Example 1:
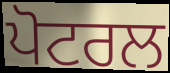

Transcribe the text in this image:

ਪੋਟਰਲ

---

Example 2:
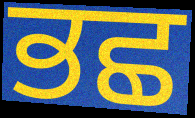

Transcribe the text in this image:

ਭਛ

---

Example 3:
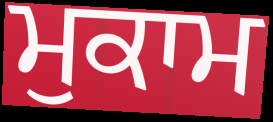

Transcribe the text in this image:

ਮੁਕਾਮ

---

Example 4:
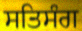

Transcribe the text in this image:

ਸਤਿਸੰਗ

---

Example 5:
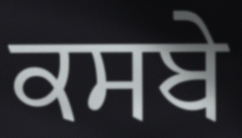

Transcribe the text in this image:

ਕਸਬੇ